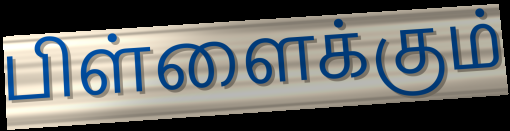
பிள்ளைக்கும்